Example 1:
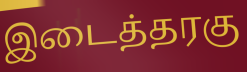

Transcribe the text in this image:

இடைத்தரகு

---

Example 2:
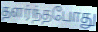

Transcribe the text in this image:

தளர்ந்தபோது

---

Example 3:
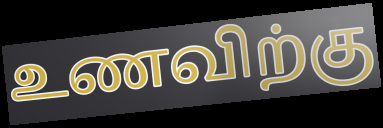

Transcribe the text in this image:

உணவிற்கு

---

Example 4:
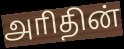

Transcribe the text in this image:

அரிதின்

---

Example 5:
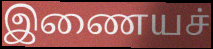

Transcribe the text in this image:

இணையச்